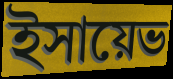
ইসায়েভ